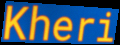
Kheri